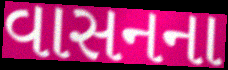
વાસનના